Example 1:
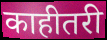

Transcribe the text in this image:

काहीतरी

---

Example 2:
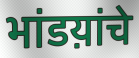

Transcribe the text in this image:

भांडय़ांचे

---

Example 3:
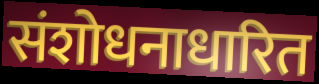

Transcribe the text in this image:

संशोधनाधारित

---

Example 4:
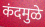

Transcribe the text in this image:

कंदमुळे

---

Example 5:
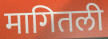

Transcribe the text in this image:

मागितली